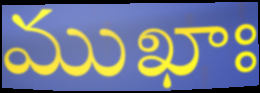
ముఖాః